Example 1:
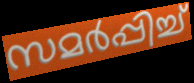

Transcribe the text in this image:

സമർപ്പിച്ച്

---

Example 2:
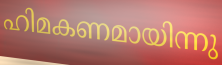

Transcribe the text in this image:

ഹിമകണമായിന്നു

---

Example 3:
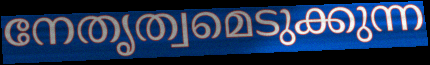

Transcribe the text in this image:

നേതൃത്വമെടുക്കുന്ന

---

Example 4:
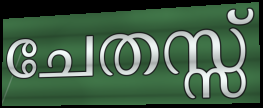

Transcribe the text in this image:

ചേതസ്സ്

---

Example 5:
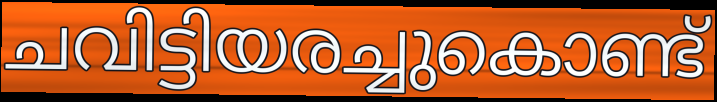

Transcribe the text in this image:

ചവിട്ടിയരച്ചുകൊണ്ട്